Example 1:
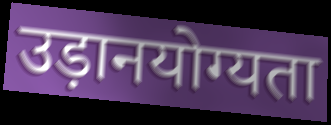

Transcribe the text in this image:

उड़ानयोग्यता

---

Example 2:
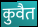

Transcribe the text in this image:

कुवैत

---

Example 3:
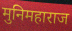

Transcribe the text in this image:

मुनिमहाराज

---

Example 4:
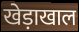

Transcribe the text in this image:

खेड़ाखाल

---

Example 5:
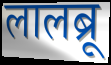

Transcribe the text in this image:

लालब्रू